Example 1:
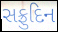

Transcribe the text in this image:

સફ્રુદિન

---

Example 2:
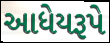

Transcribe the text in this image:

આધેયરૂપે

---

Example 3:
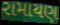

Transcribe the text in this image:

રામાયણ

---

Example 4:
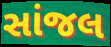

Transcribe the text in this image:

સાંજલ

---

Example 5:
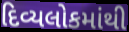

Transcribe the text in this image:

દિવ્યલોકમાંથી